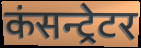
कंसन्ट्रेटर